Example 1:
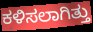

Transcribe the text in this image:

ಕಳಿಸಲಾಗಿತ್ತು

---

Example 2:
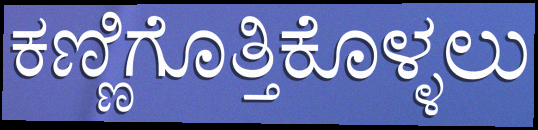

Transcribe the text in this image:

ಕಣ್ಣಿಗೊತ್ತಿಕೊಳ್ಳಲು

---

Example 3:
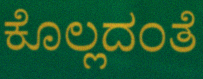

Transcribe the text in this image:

ಕೊಲ್ಲದಂತೆ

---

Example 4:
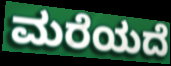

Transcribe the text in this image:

ಮರೆಯದೆ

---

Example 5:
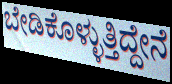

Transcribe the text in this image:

ಬೇಡಿಕೊಳ್ಳುತ್ತಿದ್ದೇನೆ